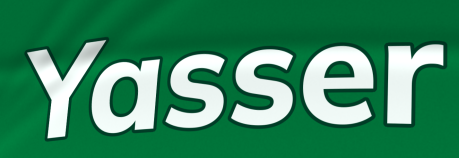
Yasser